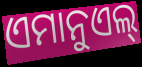
ଏମାନୁଏଲ୍